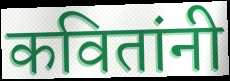
कवितांनी